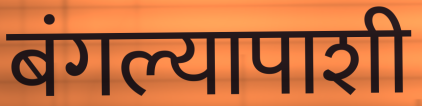
बंगल्यापाशी